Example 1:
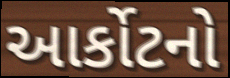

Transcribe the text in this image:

આર્કોટનો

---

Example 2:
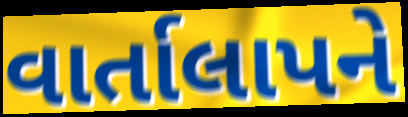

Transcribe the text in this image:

વાર્તાલાપને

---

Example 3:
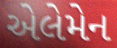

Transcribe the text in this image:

એલેમેન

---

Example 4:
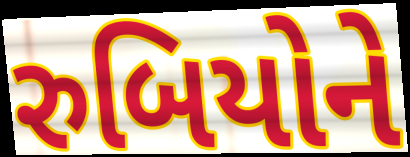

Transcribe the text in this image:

રુબિયોને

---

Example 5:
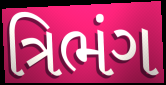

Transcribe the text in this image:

ત્રિભંગ